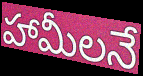
హామీలనే